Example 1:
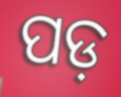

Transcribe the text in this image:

ପଡ଼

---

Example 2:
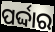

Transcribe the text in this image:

ପର୍ଦ୍ଦାର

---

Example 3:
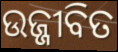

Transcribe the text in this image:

ଉଜ୍ଜୀବିତ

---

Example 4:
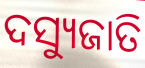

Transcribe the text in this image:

ଦସ୍ୟୁଜାତି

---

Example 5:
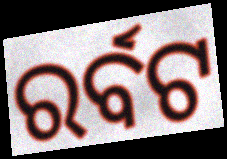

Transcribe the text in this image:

ରର୍ବଟ